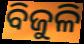
ବିଜୁଳି